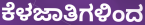
ಕೆಳಜಾತಿಗಳಿಂದ